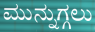
ಮುನ್ನುಗ್ಗಲು